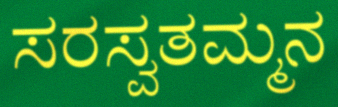
ಸರಸ್ವತಮ್ಮನ